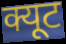
क्यूट